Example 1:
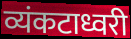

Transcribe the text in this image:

व्यंकटाध्वरी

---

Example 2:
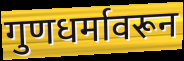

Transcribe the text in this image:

गुणधर्मावरून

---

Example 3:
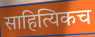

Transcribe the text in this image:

साहित्यिकच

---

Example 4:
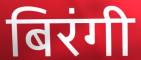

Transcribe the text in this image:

बिरंगी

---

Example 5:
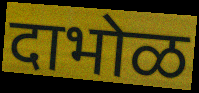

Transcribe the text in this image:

दाभोळ